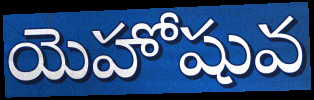
యెహోషువ